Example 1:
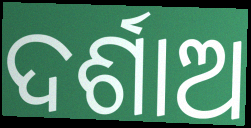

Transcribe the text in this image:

ଦର୍ଶାଅ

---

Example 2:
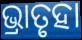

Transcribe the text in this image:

ଭ୍ରାତୃହା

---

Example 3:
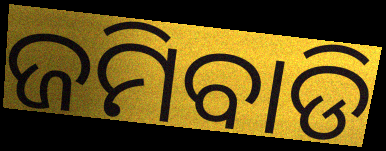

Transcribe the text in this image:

ଜମିବାଡି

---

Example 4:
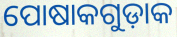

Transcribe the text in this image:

ପୋଷାକଗୁଡ଼ାକ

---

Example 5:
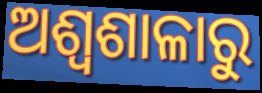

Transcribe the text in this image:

ଅଶ୍ୱଶାଳାରୁ